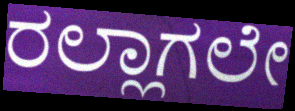
ರಲ್ಲಾಗಲೇ